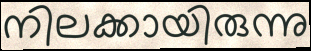
നിലക്കായിരുന്നു